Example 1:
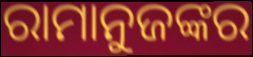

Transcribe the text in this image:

ରାମାନୁଜଙ୍କର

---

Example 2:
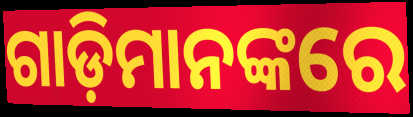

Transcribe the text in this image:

ଗାଡ଼ିମାନଙ୍କରେ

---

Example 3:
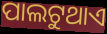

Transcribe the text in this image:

ପାଲଟୁଥାଏ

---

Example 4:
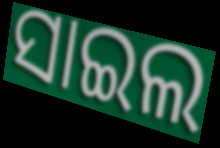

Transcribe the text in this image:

ସାଇଲ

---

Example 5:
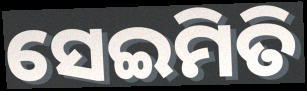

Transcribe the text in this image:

ସେଇମିତି